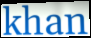
khan